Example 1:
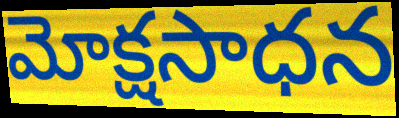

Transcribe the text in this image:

మోక్షసాధన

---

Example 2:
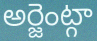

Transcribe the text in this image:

అర్జెంట్గా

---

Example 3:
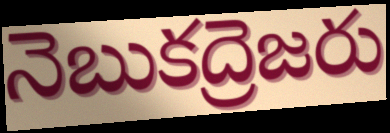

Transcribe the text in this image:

నెబుకద్రెజరు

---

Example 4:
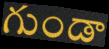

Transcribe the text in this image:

గుండా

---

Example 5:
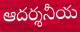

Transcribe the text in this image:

ఆదర్శనీయ